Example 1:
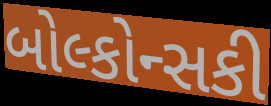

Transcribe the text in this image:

બોલ્કોન્સકી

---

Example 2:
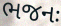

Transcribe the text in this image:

ભજનઃ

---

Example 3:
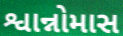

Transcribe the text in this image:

શ્વાન્નોમાસ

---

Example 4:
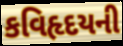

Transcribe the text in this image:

કવિહૃદયની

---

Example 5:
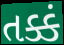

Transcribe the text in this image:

તક્કં